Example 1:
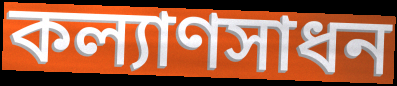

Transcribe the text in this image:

কল্যাণসাধন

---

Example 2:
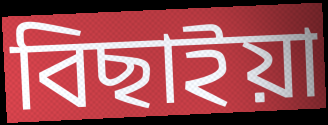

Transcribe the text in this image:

বিছাইয়া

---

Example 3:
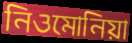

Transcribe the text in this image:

নিওমোনিয়া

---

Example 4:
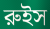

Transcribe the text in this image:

রুইস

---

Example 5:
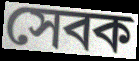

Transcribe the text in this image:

সেবক